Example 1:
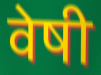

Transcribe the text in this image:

वेषी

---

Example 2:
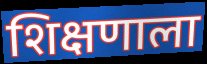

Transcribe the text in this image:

शिक्षणाला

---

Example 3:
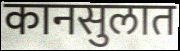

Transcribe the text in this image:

कानसुलात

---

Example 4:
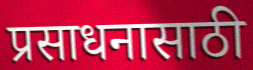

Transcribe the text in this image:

प्रसाधनासाठी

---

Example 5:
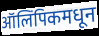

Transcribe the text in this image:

ऑलिंपिकमधून